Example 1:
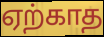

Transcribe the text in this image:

ஏற்காத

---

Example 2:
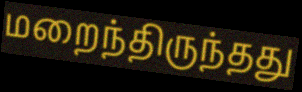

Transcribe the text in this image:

மறைந்திருந்தது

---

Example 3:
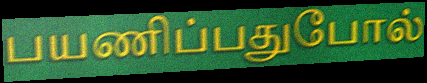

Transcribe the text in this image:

பயணிப்பதுபோல்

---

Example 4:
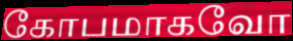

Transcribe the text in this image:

கோபமாகவோ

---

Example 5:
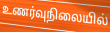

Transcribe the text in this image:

உணர்வுநிலையில்